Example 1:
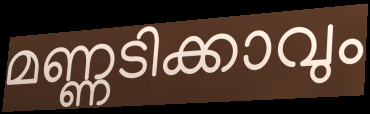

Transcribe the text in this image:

മണ്ണടിക്കാവും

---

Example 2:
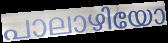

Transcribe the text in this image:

പാലാഴിയോ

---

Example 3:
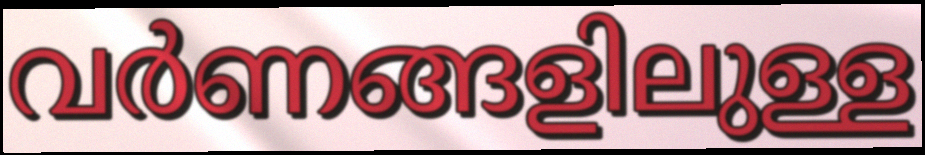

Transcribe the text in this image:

വർണങ്ങളിലുള്ള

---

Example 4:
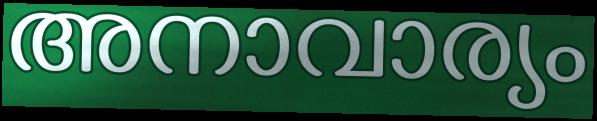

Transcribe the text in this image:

അനാവാര്യം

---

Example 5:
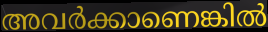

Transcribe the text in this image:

അവർക്കാണെങ്കിൽ